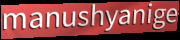
manushyanige